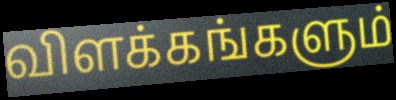
விளக்கங்களும்